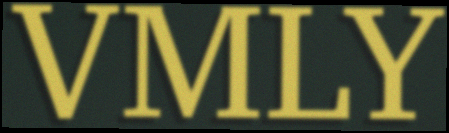
VMLY